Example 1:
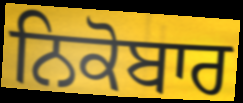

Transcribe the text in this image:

ਨਿਕੋਬਾਰ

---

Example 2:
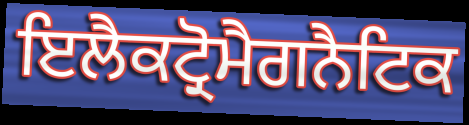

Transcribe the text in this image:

ਇਲੈਕਟ੍ਰੋਮੈਗਨੈਟਿਕ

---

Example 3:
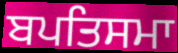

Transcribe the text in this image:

ਬਪਤਿਸਮਾ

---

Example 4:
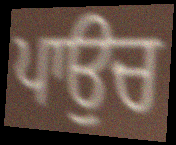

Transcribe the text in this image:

ਪਾਉਚ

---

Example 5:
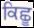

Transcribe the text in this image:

ਕਿਛੂ